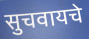
सुचवायचे